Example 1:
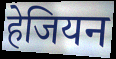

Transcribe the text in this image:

हेजियन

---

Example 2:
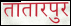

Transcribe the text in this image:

तातारपुर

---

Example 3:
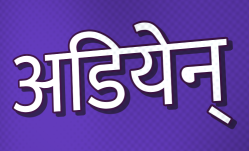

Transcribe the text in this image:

अडियेन्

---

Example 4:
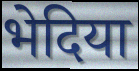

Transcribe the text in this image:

भेदिया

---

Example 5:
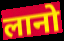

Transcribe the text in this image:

लानो